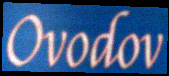
Ovodov